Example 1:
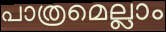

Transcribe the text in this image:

പാത്രമെല്ലാം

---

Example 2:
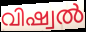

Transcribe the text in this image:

വിഷ്വൽ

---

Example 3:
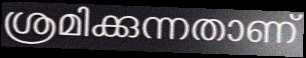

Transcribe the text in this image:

ശ്രമിക്കുന്നതാണ്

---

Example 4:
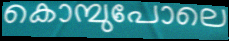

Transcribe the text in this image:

കൊമ്പുപോലെ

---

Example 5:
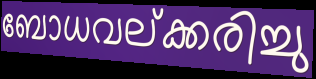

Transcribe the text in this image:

ബോധവല്ക്കരിച്ചു